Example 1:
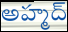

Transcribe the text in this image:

అహ్మద్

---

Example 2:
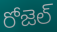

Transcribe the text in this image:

రోజెల్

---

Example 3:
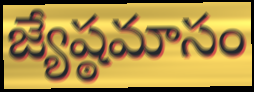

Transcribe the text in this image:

జ్యేష్ఠమాసం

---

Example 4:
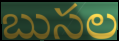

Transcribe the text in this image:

బుసల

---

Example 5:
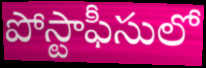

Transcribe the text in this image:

పోస్టాఫీసులో